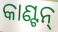
କାଣ୍ଟନ୍